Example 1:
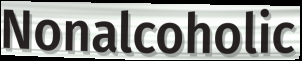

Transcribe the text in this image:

Nonalcoholic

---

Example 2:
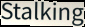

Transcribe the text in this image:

Stalking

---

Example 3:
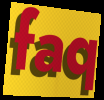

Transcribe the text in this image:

faq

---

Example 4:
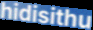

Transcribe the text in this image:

hidisithu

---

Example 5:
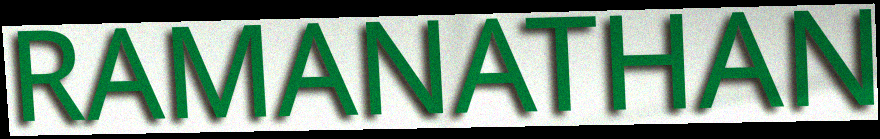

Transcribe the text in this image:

RAMANATHAN